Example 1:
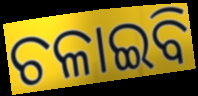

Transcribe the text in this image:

ଚଳାଇବି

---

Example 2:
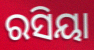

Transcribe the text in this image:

ରସିୟା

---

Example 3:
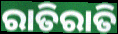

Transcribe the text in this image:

ରାତିରାତି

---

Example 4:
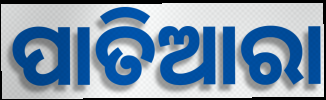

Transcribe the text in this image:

ପାତିଆରା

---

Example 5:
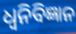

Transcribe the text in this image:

ଧ୍ୱନିବିଜ୍ଞାନ